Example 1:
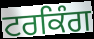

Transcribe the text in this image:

ਟਰਕਿੰਗ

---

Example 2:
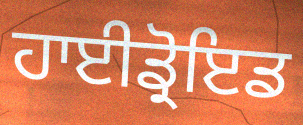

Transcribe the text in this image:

ਹਾਈਡ੍ਰੋਇਡ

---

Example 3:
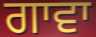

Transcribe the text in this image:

ਗਾਵਾ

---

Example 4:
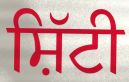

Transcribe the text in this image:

ਸ਼ਿੱਟੀ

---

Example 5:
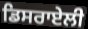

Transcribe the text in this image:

ਡਿਸਰਾਏਲੀ